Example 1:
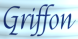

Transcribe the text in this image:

Griffon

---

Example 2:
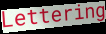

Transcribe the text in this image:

Lettering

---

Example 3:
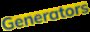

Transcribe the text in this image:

Generators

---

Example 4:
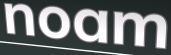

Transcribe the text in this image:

noam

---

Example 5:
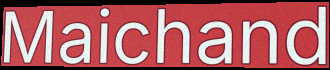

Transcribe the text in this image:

Maichand